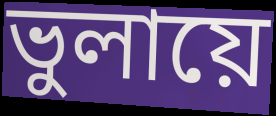
ভুলায়ে